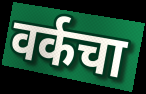
वर्कचा